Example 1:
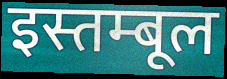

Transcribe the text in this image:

इस्तम्बूल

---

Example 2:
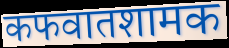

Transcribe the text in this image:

कफवातशामक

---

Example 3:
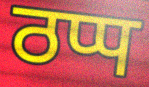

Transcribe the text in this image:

ठप्प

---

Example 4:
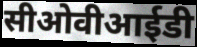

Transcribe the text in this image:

सीओवीआईडी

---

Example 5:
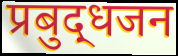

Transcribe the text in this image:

प्रबुद्धजन